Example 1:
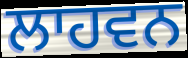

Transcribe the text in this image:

ਲਾਹਵਨ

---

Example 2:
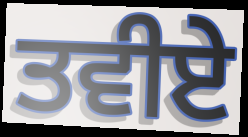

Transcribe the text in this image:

ਤਵੀਏ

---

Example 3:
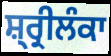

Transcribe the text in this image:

ਸ਼੍ਰ੍ਰੀਲੰਕਾ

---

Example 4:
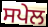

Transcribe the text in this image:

ਸਪੇਲ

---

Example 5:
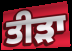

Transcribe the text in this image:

ਤੀੜਾ